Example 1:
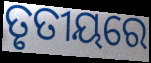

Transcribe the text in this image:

ତୃତୀୟରେ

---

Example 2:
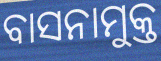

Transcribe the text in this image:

ବାସନାମୁକ୍ତ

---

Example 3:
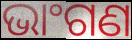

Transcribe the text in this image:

ଭାଂଗଣ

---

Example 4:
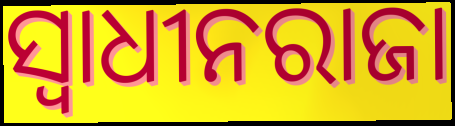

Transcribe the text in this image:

ସ୍ୱାଧୀନରାଜା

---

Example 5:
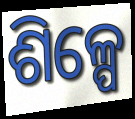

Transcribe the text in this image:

ଶିଳ୍ପେ